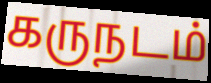
கருநடம்